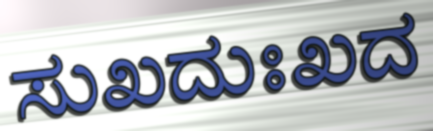
ಸುಖದುಃಖದ